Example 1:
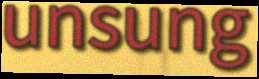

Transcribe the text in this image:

unsung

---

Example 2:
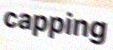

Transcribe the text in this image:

capping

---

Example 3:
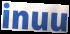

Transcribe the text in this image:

inuu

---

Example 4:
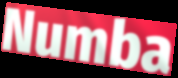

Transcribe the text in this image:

Numba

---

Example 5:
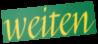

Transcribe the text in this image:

weiten